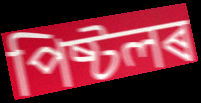
পিষ্টলৰ